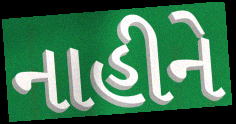
નાહીને